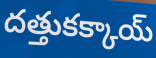
దత్తుకక్కాయ్